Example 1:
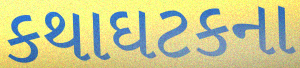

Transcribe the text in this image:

કથાઘટકના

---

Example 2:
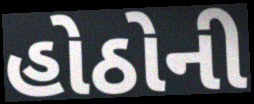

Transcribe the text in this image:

હોઠોની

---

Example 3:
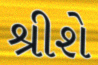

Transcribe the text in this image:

શ્રીશે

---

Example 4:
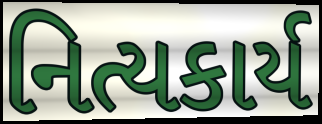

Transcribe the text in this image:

નિત્યકાર્ય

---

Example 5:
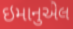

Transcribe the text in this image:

ઇમાનુએલ